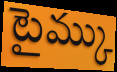
టైమ్కు